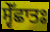
ਸ੍ਵੇੱਛਾਤਃ